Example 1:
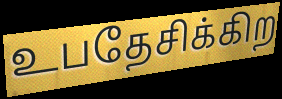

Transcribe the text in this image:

உபதேசிக்கிற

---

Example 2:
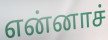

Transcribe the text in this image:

என்னாச்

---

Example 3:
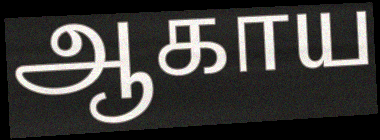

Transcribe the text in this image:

ஆகாய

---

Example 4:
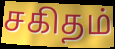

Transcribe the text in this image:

சகிதம்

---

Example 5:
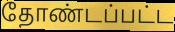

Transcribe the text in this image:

தோண்டப்பட்ட